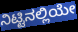
ನಿಟ್ಟಿನಲ್ಲಿಯೇ